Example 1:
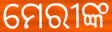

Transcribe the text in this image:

ମେରୀଙ୍କ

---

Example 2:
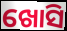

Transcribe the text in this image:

ଖୋସି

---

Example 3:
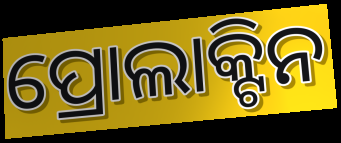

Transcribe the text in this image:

ପ୍ରୋଲାକ୍ଟିନ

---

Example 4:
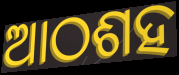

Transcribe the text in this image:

ଆଠଶହ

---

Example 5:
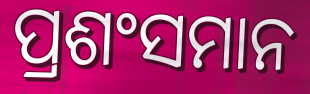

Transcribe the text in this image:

ପ୍ରଶଂସମାନ